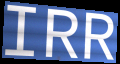
IRR